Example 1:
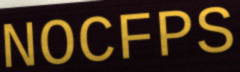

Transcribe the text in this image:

NOCFPS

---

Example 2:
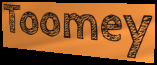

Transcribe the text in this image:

Toomey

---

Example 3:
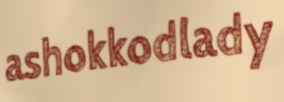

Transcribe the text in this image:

ashokkodlady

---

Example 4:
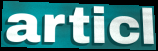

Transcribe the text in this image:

articl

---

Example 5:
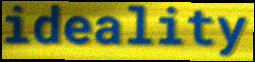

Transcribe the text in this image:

ideality